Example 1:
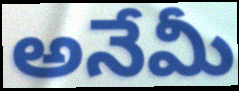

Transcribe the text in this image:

అనేమీ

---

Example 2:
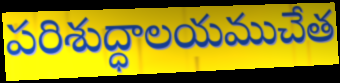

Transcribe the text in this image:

పరిశుద్ధాలయముచేత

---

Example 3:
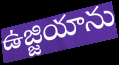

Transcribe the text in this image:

ఉజ్జియాను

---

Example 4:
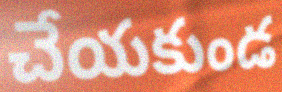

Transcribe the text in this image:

చేయకుండ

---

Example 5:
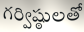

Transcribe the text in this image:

గర్విష్ఠులతో